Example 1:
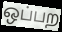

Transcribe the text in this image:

ஒப்பற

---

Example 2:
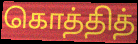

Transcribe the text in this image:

கொத்தித்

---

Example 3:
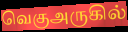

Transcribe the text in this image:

வெகுஅருகில்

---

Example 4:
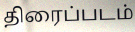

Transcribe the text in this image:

திரைப்படம்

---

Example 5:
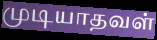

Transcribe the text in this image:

முடியாதவள்